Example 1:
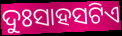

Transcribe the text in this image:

ଦୁଃସାହସଟିଏ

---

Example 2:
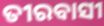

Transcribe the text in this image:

ତୀରବାସୀ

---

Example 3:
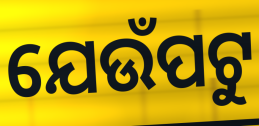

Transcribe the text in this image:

ଯେଉଁପଟୁ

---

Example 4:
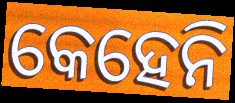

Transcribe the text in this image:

କେହେନି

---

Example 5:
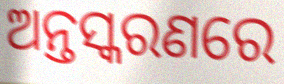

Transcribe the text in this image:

ଅନ୍ତସ୍କରଣରେ